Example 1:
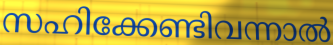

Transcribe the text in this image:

സഹിക്കേണ്ടിവന്നാൽ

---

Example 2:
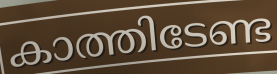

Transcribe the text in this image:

കാത്തിടേണ്ട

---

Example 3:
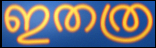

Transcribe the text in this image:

ഇതത്ര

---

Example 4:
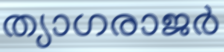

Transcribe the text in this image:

ത്യാഗരാജർ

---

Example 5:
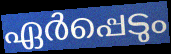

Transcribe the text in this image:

ഏർപ്പെടും